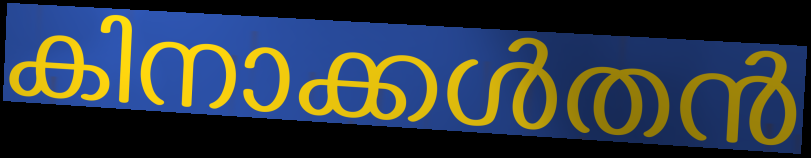
കിനാക്കൾതൻ